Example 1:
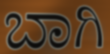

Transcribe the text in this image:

ಬಾಗಿ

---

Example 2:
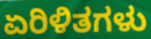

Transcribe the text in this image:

ಏರಿಳಿತಗಳು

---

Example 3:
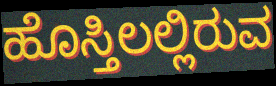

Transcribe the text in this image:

ಹೊಸ್ತಿಲಲ್ಲಿರುವ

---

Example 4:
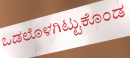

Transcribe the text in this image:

ಒಡಲೊಳಗಿಟ್ಟುಕೊಂಡ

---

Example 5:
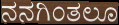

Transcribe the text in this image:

ನನಗಿಂತಲೂ